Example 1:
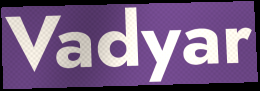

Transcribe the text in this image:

Vadyar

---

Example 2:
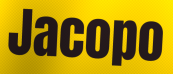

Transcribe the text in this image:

Jacopo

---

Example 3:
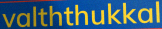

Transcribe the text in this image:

valththukkal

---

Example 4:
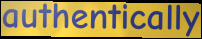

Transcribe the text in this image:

authentically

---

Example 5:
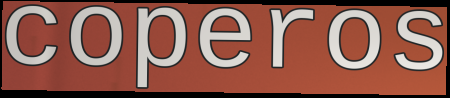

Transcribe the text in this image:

coperos